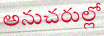
అనుచరుల్లో